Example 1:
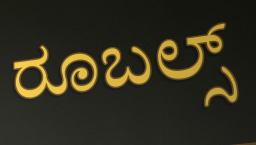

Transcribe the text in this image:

ರೂಬಲ್ಸ್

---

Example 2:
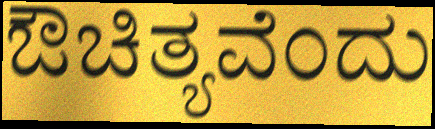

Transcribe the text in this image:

ಔಚಿತ್ಯವೆಂದು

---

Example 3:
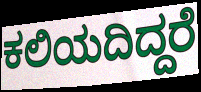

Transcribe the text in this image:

ಕಲಿಯದಿದ್ದರೆ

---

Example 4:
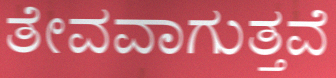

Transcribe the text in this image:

ತೇವವಾಗುತ್ತವೆ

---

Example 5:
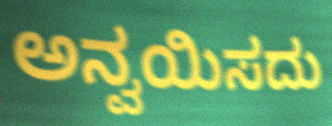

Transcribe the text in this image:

ಅನ್ವಯಿಸದು